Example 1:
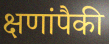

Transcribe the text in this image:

क्षणांपैकी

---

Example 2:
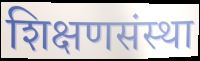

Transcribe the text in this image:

शिक्षणसंस्था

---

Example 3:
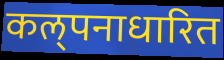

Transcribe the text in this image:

कल्पनाधारित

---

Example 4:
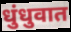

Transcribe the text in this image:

धुंधुवात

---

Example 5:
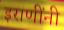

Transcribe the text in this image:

इराणींनी